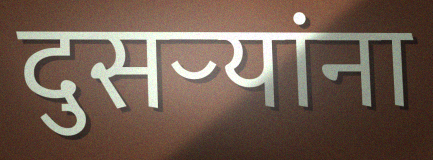
दुसऱ्यांना